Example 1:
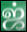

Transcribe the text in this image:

ஜ்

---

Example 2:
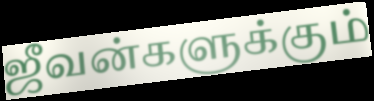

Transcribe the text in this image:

ஜீவன்களுக்கும்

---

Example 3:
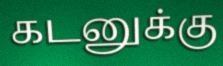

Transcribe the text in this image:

கடனுக்கு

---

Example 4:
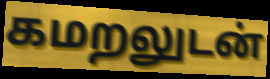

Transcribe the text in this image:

கமறலுடன்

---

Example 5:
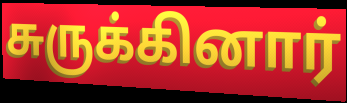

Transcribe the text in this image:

சுருக்கினார்